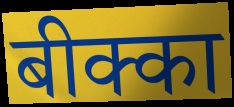
बीक्का